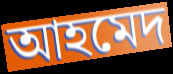
আহমেদ